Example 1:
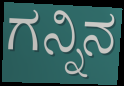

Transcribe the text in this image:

ಗನ್ನಿನ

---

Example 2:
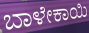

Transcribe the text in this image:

ಬಾಳೇಕಾಯಿ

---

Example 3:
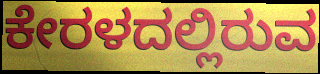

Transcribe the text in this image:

ಕೇರಳದಲ್ಲಿರುವ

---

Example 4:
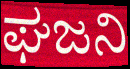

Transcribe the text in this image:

ಘಜನಿ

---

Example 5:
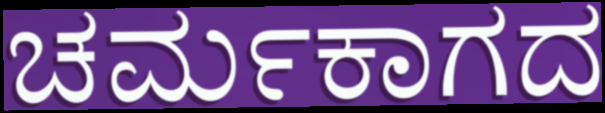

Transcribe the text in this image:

ಚರ್ಮಕಾಗದ